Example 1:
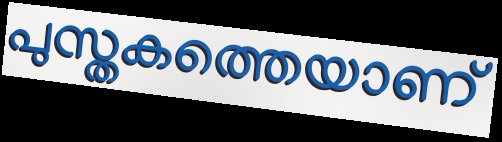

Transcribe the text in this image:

പുസ്തകത്തെയാണ്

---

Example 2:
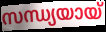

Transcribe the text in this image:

സന്ധ്യയായ്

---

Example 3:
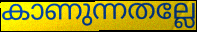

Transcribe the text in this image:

കാണുന്നതല്ലേ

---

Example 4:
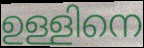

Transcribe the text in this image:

ഉള്ളിനെ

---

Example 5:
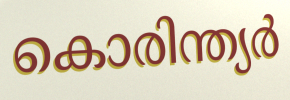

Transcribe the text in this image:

കൊരിന്ത്യർ